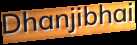
Dhanjibhai